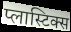
प्लास्टिक्स